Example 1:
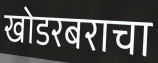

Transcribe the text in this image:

खोडरबराचा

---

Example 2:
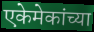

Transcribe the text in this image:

एकेमेकांच्या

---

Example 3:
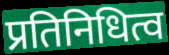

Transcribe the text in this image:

प्रतिनिधित्व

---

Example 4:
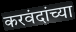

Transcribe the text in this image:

करवंदांच्या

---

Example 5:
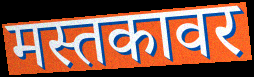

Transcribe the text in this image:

मस्तकावर